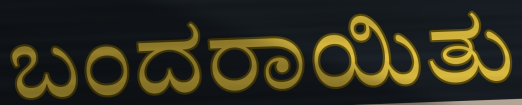
ಬಂದರಾಯಿತು